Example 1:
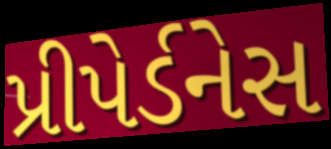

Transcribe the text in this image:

પ્રીપેર્ડનેસ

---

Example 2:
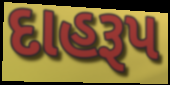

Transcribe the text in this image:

દાહરૂપ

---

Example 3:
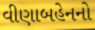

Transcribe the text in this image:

વીણાબહેનનો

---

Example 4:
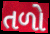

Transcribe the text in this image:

તળો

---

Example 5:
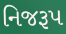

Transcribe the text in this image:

નિજરૂપ